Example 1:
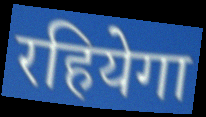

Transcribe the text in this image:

रहियेगा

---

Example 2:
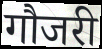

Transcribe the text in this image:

गौजरी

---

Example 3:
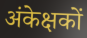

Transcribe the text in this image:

अंकेक्षकों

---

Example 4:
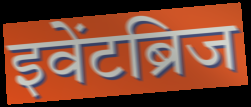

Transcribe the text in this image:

इवेंटब्रिज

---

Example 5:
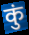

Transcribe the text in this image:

कुं